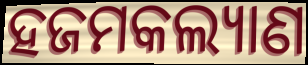
ହଜମକଲ୍ୟାଣ